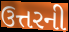
ઉત્તરની